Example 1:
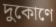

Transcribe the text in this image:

দুকোণে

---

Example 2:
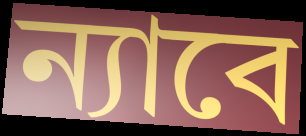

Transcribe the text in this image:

ন্যাবে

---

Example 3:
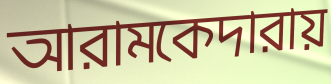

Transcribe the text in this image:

আরামকেদারায়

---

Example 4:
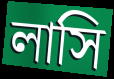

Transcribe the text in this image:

লাসি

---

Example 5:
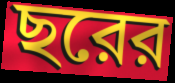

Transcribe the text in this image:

ছরের